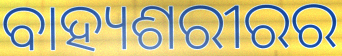
ବାହ୍ୟଶରୀରର